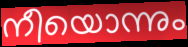
നീയൊന്നും